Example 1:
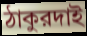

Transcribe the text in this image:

ঠাকুরদাই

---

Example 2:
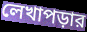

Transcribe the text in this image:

লেখাপড়ার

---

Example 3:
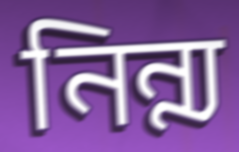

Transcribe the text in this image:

নিন্ম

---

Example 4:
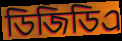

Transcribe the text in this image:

ডিজিডিএ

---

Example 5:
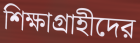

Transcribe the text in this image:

শিক্ষাগ্রাহীদের